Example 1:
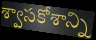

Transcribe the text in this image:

శ్వాసకోశాన్ని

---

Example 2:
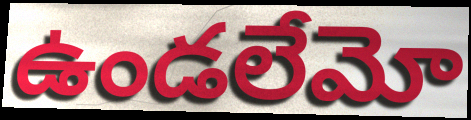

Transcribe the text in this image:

ఉండలేమో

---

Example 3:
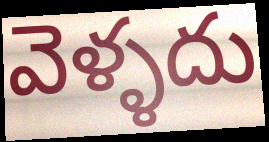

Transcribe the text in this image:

వెళ్ళదు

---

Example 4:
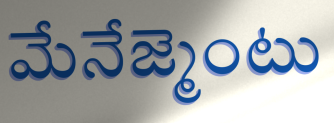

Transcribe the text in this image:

మేనేజ్మెంటు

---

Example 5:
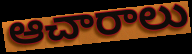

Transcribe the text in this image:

ఆచారాలు